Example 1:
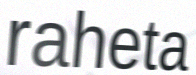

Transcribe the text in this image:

raheta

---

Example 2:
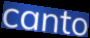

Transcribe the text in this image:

canto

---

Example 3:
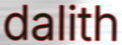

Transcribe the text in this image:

dalith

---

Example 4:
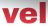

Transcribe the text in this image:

vel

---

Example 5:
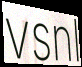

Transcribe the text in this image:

vsnl